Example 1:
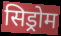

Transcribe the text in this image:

सिड्रोम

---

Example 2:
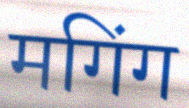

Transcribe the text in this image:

मगिंग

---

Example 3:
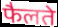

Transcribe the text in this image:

फैलते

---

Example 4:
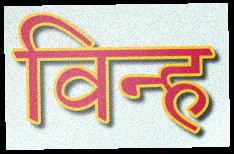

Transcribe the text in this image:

विन्ह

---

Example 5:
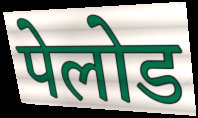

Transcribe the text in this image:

पेलोड